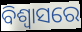
ବିଶ୍ବାସରେ